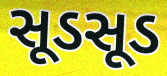
સૂડસૂડ